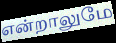
என்றாலுமே